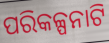
ପରିକଳ୍ପନାଟି